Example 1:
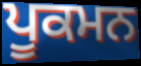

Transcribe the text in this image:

ਪੂਕਮਨ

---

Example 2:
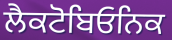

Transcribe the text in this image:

ਲੈਕਟੋਬਿਓਨਿਕ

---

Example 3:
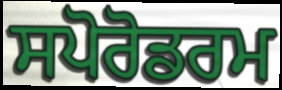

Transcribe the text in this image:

ਸਪੋਰੋਡਰਮ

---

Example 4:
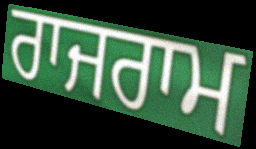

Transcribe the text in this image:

ਰਾਜਰਾਮ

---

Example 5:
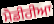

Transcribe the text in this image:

ਮੈਡੀਰੀਆ